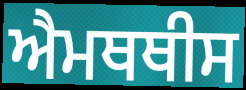
ਐਮਥਥੀਸ